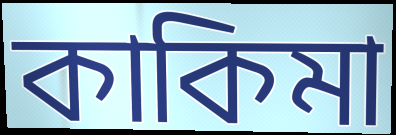
কাকিমা